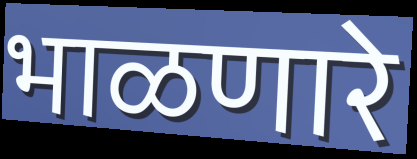
भाळणारे